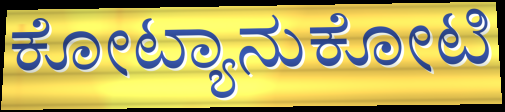
ಕೋಟ್ಯಾನುಕೋಟಿ